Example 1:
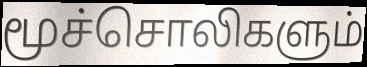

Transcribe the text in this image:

மூச்சொலிகளும்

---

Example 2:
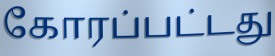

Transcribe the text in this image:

கோரப்பட்டது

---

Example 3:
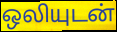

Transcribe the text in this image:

ஒலியுடன்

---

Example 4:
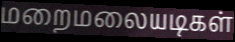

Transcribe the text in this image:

மறைமலையடிகள்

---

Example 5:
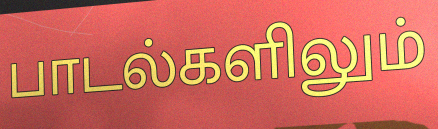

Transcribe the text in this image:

பாடல்களிலும்